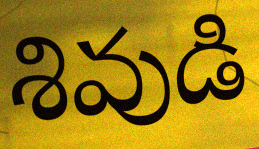
శివుడి